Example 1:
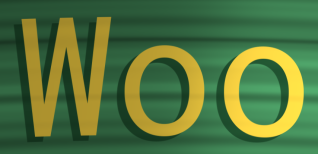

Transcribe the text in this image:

Woo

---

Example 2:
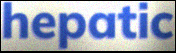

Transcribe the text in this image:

hepatic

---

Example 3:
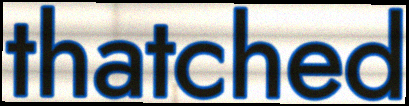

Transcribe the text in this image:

thatched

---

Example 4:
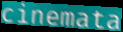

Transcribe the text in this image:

cinemata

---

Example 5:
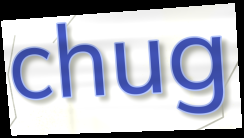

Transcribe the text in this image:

chug